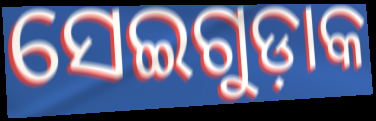
ସେଇଗୁଡ଼ାକ